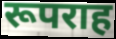
रूपराह